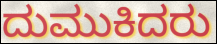
ದುಮುಕಿದರು